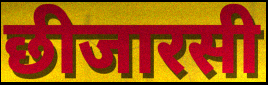
छीजारसी